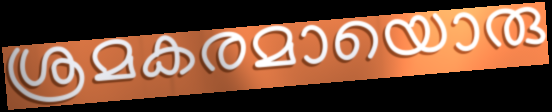
ശ്രമകരമായൊരു